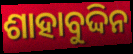
ଶାହାବୁଦ୍ଦିନ